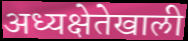
अध्यक्षेतेखाली